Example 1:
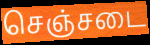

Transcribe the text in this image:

செஞ்சடை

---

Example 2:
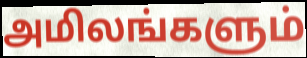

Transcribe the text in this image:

அமிலங்களும்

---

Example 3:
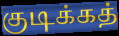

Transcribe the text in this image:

குடிக்கத்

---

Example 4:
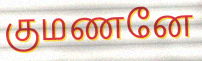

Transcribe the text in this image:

குமணனே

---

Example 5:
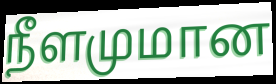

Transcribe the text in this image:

நீளமுமான